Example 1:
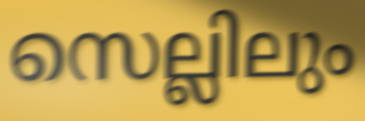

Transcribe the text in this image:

സെല്ലിലും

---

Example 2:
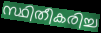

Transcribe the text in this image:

സ്ഥിതീകരിച്ച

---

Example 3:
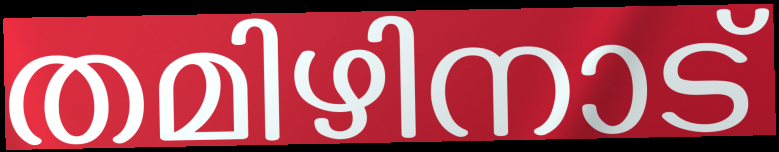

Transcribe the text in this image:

തമിഴിനാട്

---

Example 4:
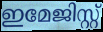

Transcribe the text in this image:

ഇമേജിസ്റ്റ്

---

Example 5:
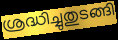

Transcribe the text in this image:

ശ്രദ്ധിച്ചുതുടങ്ങി